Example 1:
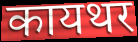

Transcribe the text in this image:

कायथर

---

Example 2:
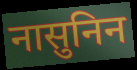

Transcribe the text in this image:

नासुनिन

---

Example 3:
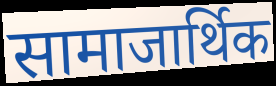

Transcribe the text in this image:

सामाजार्थिक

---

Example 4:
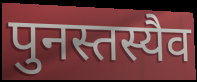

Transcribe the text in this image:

पुनस्तस्यैव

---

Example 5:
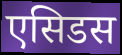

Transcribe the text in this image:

एसिडस